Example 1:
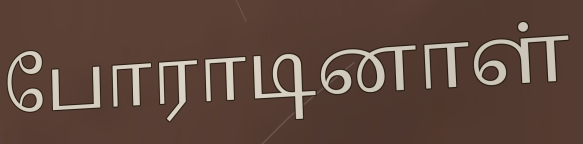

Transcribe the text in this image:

போராடினாள்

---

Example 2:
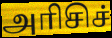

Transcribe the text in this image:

அரிசிச்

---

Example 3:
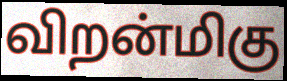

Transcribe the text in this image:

விறன்மிகு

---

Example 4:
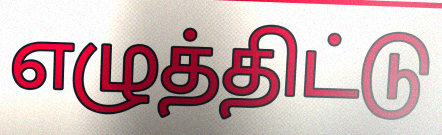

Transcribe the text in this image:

எழுத்திட்டு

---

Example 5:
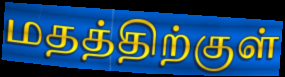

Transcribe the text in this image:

மதத்திற்குள்